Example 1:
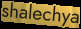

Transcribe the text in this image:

shalechya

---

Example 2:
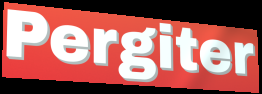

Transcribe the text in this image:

Pergiter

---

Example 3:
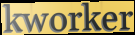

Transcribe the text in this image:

kworker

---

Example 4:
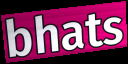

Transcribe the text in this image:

bhats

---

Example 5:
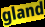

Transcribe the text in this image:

gland